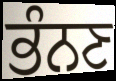
ਭੰਨਣ